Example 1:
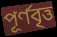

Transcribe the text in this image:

পূর্ণবৃত্ত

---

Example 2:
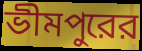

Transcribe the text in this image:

ভীমপুরের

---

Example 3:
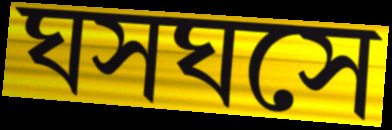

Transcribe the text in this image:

ঘসঘসে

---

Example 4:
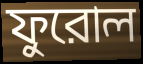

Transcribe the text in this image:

ফুরোল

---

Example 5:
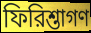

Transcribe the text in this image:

ফিরিশ্তাগণ